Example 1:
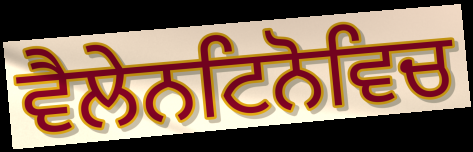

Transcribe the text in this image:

ਵੈਲੇਨਟਿਨੋਵਿਚ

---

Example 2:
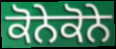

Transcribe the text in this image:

ਕੋਨੇਕੋਨੇ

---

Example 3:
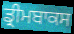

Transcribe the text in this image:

ਡ੍ਰੀਮਬਾਕਸ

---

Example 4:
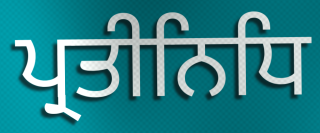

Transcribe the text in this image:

ਪ੍ਰਤੀਨਿਧਿ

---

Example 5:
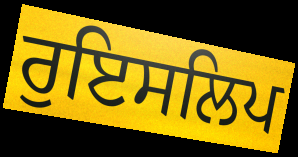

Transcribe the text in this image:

ਰੁਇਸਲਿਪ